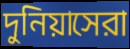
দুনিয়াসেরা